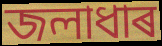
জলাধাৰ